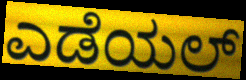
ಎಡೆಯಲ್